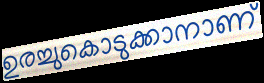
ഉരച്ചുകൊടുക്കാനാണ്